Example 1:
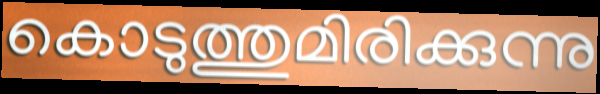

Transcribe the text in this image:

കൊടുത്തുമിരിക്കുന്നു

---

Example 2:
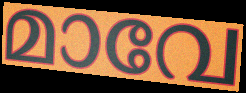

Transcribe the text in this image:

മാവേ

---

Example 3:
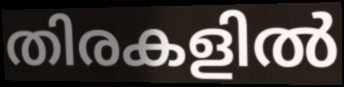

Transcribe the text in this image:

തിരകളിൽ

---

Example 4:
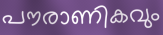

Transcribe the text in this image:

പൗരാണികവും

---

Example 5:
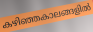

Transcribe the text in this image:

കഴിഞ്ഞകാലങ്ങളിൽ